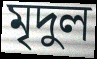
মৃদুল